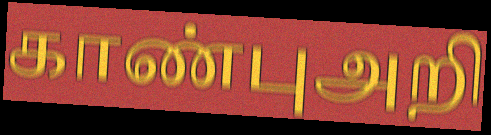
காண்புஅறி